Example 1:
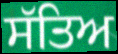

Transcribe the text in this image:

ਸੱਤਿਅ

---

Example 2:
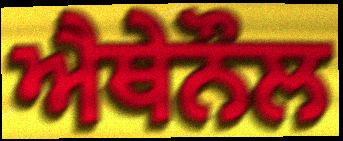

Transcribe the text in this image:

ਐਥੇਨੌਲ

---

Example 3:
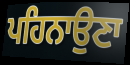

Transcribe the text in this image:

ਪਹਿਨਾਉਣਾ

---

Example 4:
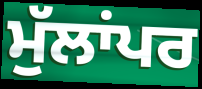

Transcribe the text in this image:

ਮੁੱਲਾਂਪਰ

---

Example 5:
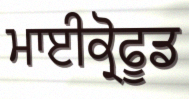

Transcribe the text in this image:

ਮਾਈਕ੍ਰੋਫੂਡ